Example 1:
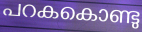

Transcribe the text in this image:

പറകകൊണ്ടു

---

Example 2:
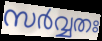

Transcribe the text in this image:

സർവ്വതഃ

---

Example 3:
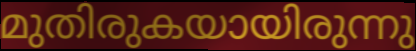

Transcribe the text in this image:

മുതിരുകയായിരുന്നു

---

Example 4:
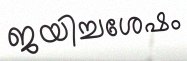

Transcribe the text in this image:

ജയിച്ചശേഷം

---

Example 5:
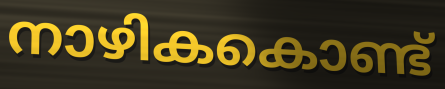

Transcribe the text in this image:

നാഴികകൊണ്ട്